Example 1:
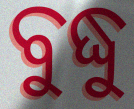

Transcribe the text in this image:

ବୁଦ୍ଧୁ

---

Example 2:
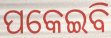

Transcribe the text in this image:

ପକେଇବି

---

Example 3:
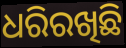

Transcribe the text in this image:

ଧରିରଖିଛି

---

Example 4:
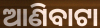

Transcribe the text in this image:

ଆଣିବାଟା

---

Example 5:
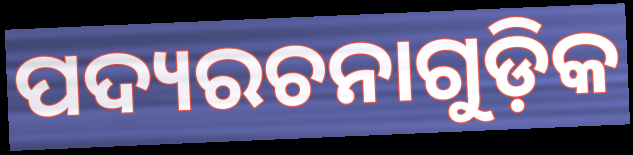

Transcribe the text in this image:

ପଦ୍ୟରଚନାଗୁଡ଼ିକ